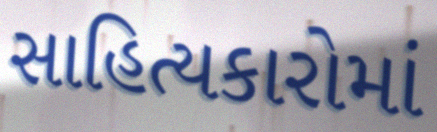
સાહિત્યકારોમાં